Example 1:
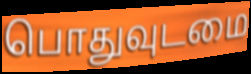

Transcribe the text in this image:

பொதுவுடமை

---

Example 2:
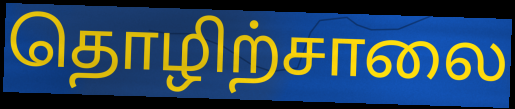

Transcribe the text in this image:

தொழிற்சாலை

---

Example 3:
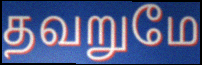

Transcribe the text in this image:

தவறுமே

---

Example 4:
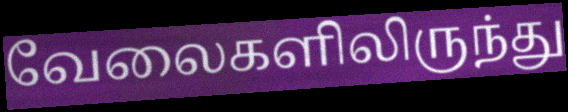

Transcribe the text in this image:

வேலைகளிலிருந்து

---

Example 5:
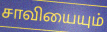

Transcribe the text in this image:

சாவியையும்